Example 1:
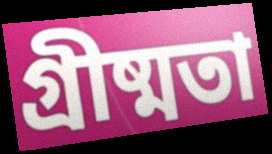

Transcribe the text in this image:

গ্ৰীষ্মতা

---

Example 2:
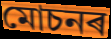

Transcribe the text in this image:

মোচনৰ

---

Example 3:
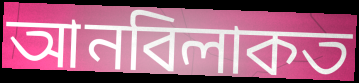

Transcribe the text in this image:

আনবিলাকত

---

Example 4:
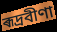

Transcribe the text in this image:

ৰূদ্ৰবীণা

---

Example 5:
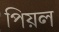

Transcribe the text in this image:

পিয়ল